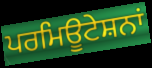
ਪਰਮਿਊਟੇਸ਼ਨਾਂ